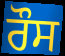
ਰੌਸ